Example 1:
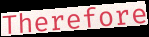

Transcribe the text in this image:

Therefore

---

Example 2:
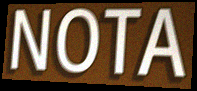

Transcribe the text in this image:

NOTA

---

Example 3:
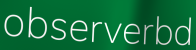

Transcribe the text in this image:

observerbd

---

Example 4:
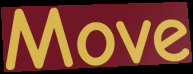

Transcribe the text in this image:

Move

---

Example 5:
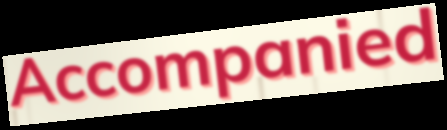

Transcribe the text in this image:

Accompanied